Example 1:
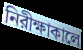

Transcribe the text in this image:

নিরীক্ষাকালে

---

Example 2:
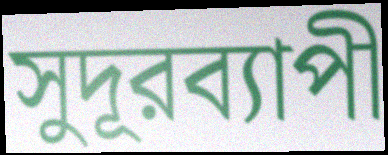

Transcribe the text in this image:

সুদূরব্যাপী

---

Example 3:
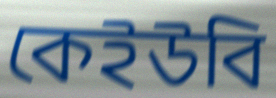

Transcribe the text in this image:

কেইউবি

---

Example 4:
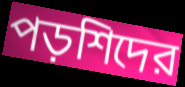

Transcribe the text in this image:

পড়শিদের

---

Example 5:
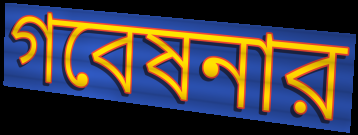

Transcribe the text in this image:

গবেষনার